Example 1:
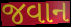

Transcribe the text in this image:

જવાન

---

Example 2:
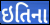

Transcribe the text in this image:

ઇતિના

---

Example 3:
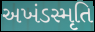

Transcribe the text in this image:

અખંડસ્મૃતિ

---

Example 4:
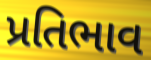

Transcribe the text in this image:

પ્રતિભાવ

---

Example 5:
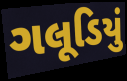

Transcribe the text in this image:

ગલૂડિયું